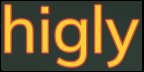
higly